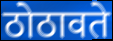
ठोठावते